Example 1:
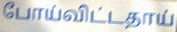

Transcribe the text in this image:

போய்விட்டதாய்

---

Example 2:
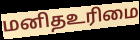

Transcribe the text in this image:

மனிதஉரிமை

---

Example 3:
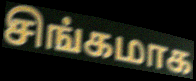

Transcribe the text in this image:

சிங்கமாக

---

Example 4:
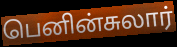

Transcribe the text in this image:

பெனின்சுலார்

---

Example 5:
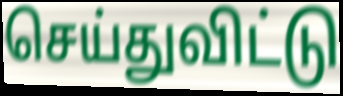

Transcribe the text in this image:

செய்துவிட்டு